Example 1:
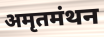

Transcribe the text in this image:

अमृतमंथन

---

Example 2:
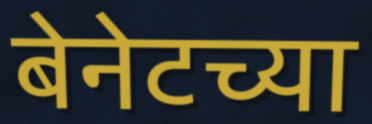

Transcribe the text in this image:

बेनेटच्या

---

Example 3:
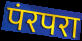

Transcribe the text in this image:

पंरपरा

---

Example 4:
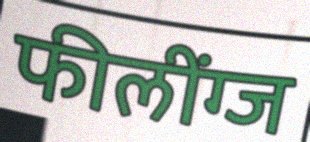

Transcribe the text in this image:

फीलींग्ज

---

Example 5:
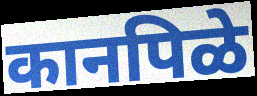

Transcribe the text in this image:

कानपिळे